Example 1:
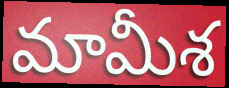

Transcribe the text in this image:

మామీశ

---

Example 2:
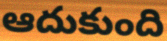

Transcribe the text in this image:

ఆదుకుంది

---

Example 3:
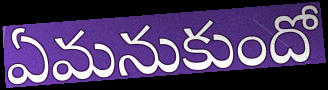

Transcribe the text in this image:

ఏమనుకుందో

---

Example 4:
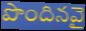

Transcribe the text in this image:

పొందినవై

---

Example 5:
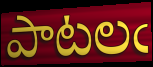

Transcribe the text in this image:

పాటలఁ